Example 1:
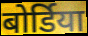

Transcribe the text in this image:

बोर्डिया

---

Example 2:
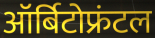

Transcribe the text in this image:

ऑर्बिटोफ्रंटल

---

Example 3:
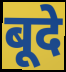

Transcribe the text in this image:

बूदे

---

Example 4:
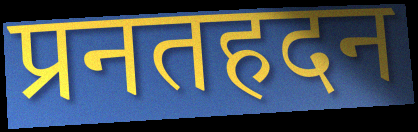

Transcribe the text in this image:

प्रनतहदन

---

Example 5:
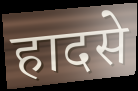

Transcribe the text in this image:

हादसे